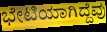
ಭೇಟಿಯಾಗಿದ್ದೆವು